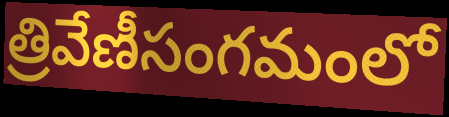
త్రివేణీసంగమంలో